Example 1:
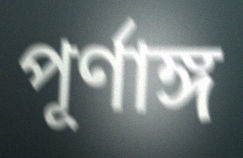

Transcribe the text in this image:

পূৰ্ণাঙ্গ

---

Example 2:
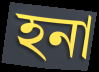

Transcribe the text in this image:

হনা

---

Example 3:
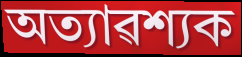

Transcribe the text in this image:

অত্যাৱশ্যক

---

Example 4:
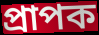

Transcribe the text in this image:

প্ৰাপক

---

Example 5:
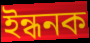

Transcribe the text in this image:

ইন্ধনক